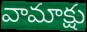
వామాక్షు